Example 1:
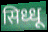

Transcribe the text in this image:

सिध्धू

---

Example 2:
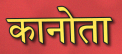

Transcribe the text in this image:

कानोता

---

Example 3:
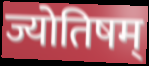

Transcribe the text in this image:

ज्योतिषम्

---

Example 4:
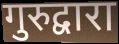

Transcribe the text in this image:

गुरुद्वारा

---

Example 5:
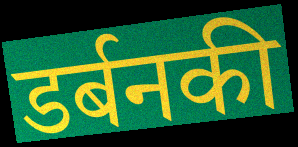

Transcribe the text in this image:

डर्बनकी